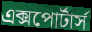
এক্সপোর্টার্স